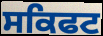
ਸਕਿਫਟ